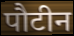
पौटीन